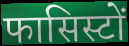
फासिस्टों